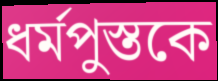
ধর্মপুস্তকে